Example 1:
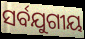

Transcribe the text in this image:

ସର୍ବଯୁଗୀୟ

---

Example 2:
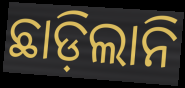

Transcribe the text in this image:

ଛାଡ଼ିଲାନି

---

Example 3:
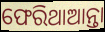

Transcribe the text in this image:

ଫେରିଥାଆନ୍ତା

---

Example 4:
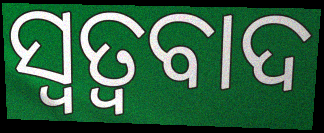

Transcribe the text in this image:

ସ୍ୱତ୍ୱବାଦ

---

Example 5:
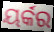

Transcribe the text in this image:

ୟର୍କର